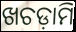
ଖଚଡ଼ାମି